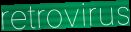
retrovirus